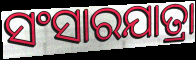
ସଂସାରଯାତ୍ରା